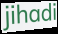
jihadi